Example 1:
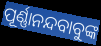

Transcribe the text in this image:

ପୂର୍ଣ୍ଣାନନ୍ଦବାବୁଙ୍କ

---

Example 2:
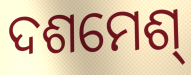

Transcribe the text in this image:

ଦଶମେଶ୍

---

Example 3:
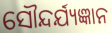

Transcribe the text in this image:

ସୌନ୍ଦର୍ଯ୍ୟଜ୍ଞାନ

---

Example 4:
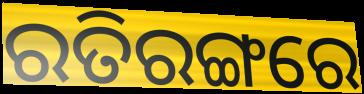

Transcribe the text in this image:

ରତିରଙ୍ଗରେ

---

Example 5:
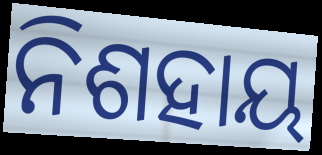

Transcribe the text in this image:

ନିଶହାୟ